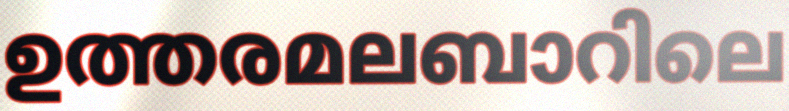
ഉത്തരമലബാറിലെ